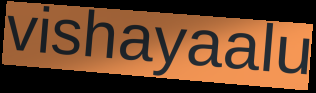
vishayaalu